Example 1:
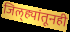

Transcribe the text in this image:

जिल्ह्यांतूनही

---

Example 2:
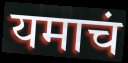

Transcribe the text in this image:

यमाचं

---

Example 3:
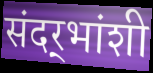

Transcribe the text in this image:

संदर्भांशी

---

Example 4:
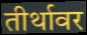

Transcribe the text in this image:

तीर्थावर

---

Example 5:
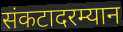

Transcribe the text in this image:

संकटादरम्यान